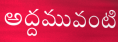
అద్దమువంటి